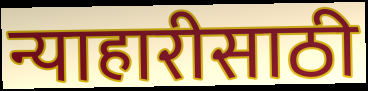
न्याहारीसाठी